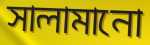
সালামানো